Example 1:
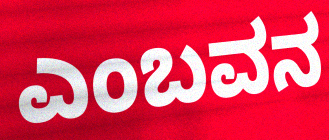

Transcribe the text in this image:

ಎಂಬವನ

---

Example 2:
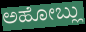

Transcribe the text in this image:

ಅಹೋಬ್ಲು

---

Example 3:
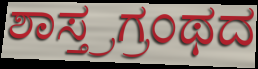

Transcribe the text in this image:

ಶಾಸ್ತ್ರಗ್ರಂಥದ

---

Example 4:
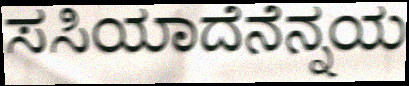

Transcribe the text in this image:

ಸಸಿಯಾದೆನೆನ್ನಯ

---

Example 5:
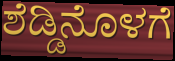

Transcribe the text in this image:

ಶೆಡ್ಡಿನೊಳಗೆ